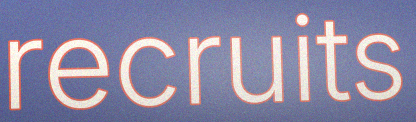
recruits